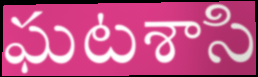
ఘటశాసి